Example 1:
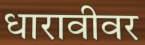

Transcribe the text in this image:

धारावीवर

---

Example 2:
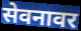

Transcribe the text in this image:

सेवनावर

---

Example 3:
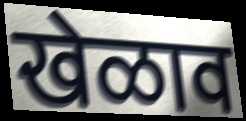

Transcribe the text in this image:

खेळाव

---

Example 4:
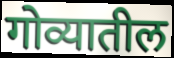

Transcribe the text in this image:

गोव्यातील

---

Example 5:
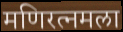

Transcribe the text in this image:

मणिरत्नमला